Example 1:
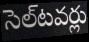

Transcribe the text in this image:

సెల్‌టవర్లు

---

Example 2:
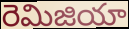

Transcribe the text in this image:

రెమిజియా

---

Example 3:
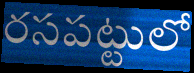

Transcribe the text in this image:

రసపట్టులో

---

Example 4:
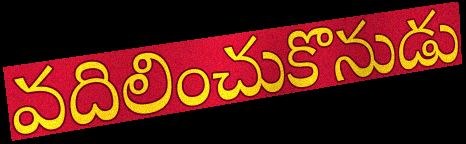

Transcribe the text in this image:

వదిలించుకొనుడు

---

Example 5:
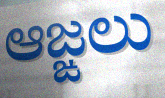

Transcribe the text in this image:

ఆజ్ఙలు